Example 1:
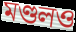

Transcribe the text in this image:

মণ্ডলও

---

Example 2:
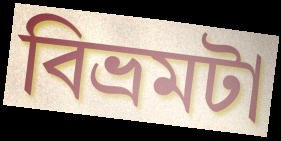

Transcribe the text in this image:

বিভ্রমটা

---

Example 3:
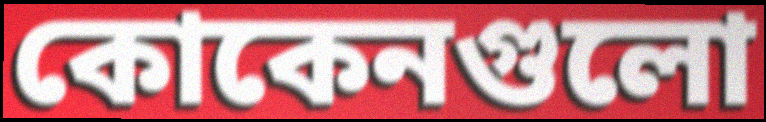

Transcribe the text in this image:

কোকেনগুলো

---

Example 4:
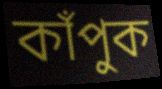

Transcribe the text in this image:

কাঁপুক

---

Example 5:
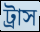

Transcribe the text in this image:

ট্রাস